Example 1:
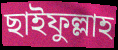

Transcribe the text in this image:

ছাইফুল্লাহ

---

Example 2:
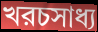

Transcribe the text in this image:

খরচসাধ্য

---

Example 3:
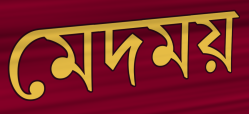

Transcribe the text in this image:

মেদময়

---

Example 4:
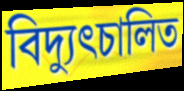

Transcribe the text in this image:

বিদ্যুৎচালিত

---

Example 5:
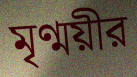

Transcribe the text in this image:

মৃণ্ময়ীর